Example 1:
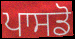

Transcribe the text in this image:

ਪਾਸਡੋ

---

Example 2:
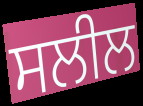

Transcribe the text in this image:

ਸਲੀਲ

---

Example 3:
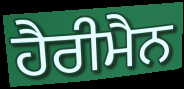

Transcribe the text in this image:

ਹੈਰੀਮੈਨ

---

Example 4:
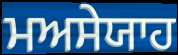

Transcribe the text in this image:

ਮਅਸੇਯਾਹ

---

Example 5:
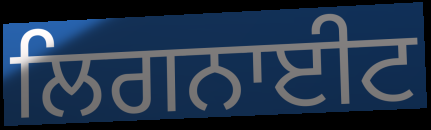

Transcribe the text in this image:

ਲਿਗਨਾਈਟ